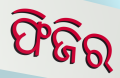
ଫିଜିର